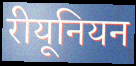
रीयूनियन